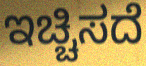
ಇಚ್ಚಿಸದೆ